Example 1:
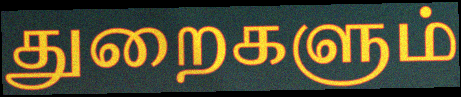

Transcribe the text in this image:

துறைகளும்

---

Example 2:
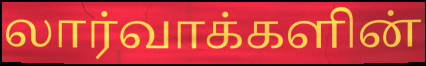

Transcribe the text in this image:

லார்வாக்களின்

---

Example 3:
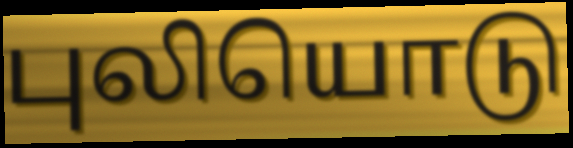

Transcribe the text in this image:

புலியொடு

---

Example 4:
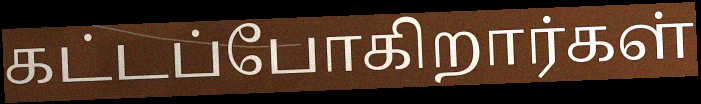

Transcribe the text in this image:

கட்டப்போகிறார்கள்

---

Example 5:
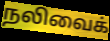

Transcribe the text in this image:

நலிவைக்